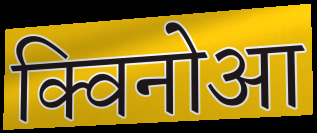
क्विनोआ